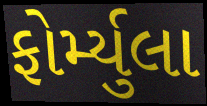
ફોર્મ્યુલા